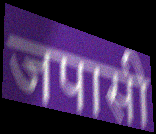
जपासी